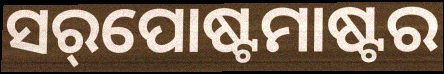
ସର୍‌ପୋଷ୍ଟମାଷ୍ଟର